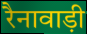
रैनावाड़ी